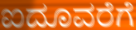
ಐದೂವರೆಗೆ